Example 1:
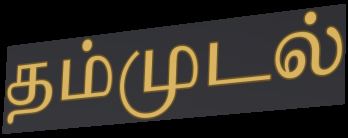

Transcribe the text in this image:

தம்முடல்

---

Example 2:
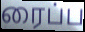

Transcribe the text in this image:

ரைப்ப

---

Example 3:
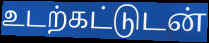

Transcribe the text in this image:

உடற்கட்டுடன்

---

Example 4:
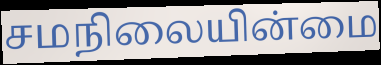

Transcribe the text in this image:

சமநிலையின்மை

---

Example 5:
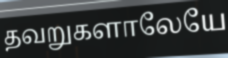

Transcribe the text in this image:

தவறுகளாலேயே